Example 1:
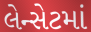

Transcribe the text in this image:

લેન્સેટમાં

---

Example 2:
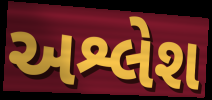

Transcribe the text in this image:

અશ્લેશ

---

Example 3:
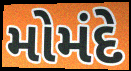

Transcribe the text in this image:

મોમંદે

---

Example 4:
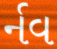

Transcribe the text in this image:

ર્નવ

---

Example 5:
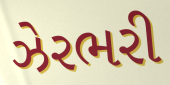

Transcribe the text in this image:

ઝેરભરી